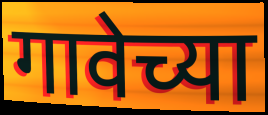
गावेच्या